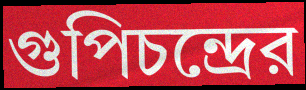
গুপিচন্দ্রের